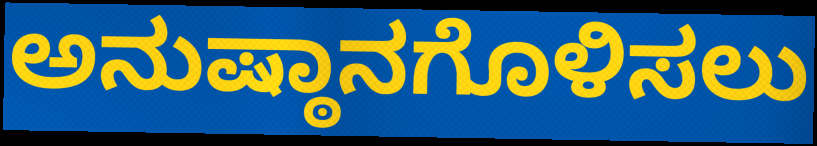
ಅನುಷ್ಠಾನಗೊಳಿಸಲು